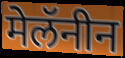
मेलॅनीन